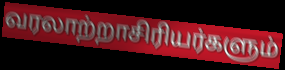
வரலாற்றாசிரியர்களும்